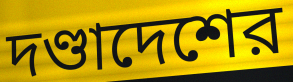
দণ্ডাদেশের